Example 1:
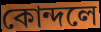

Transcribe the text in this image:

কোন্দলে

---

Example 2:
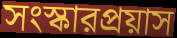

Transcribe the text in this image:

সংস্কারপ্রয়াস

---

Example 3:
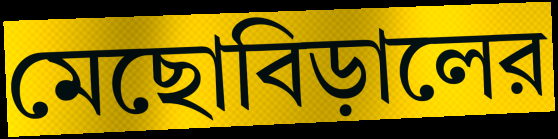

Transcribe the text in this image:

মেছোবিড়ালের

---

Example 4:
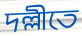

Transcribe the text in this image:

দল্লীতে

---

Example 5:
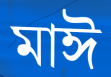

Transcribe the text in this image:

মাঈ